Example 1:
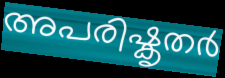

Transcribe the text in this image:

അപരിഷ്കൃതർ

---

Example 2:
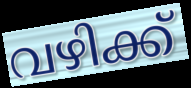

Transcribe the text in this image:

വഴിക്ക്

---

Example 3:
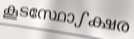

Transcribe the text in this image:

കൂടസ്ഥോഽക്ഷര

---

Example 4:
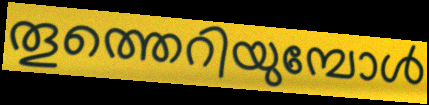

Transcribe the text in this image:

തൂത്തെറിയുമ്പോൾ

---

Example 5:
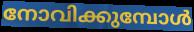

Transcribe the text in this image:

നോവിക്കുമ്പോൾ